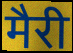
मैरी